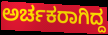
ಅರ್ಚಕರಾಗಿದ್ದ